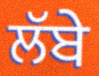
ਲੱਬੇ